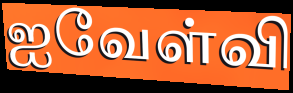
ஐவேள்வி